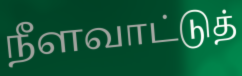
நீளவாட்டுத்